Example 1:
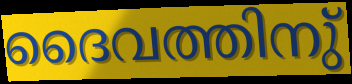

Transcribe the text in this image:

ദൈവത്തിനു്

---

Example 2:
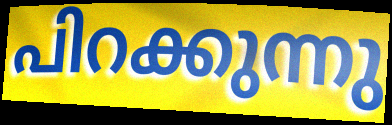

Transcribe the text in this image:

പിറക്കുന്നു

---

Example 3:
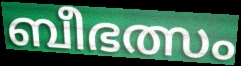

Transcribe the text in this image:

ബീഭത്സം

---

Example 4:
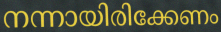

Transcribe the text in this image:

നന്നായിരിക്കേണം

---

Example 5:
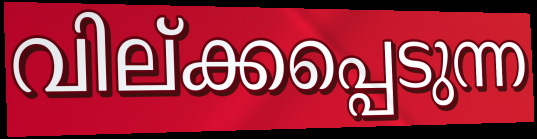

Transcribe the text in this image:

വില്ക്കപ്പെടുന്ന